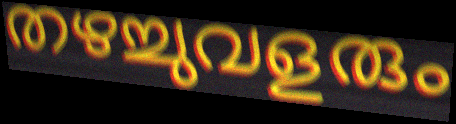
തഴച്ചുവളരും